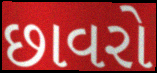
છાવરો